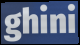
ghini